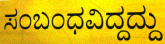
ಸಂಬಂಧವಿದ್ದದ್ದು